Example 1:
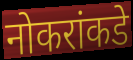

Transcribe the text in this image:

नोकरांकडे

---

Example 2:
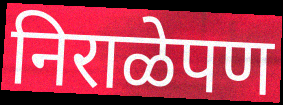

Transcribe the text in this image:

निराळेपण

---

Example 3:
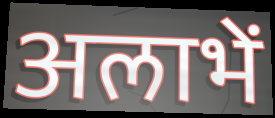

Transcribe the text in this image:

अलाभें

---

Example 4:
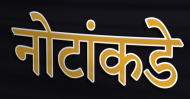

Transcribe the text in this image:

नोटांकडे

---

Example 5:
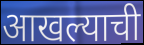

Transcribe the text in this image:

आखल्याची